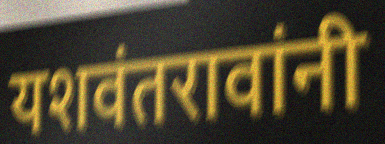
यशवंतरावांनी